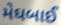
મેઘબાઈ